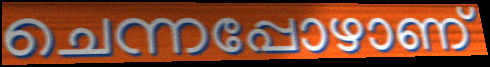
ചെന്നപ്പോഴാണ്